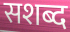
सशब्द